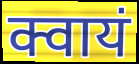
क्वायं